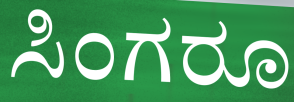
ಸಿಂಗರೂ